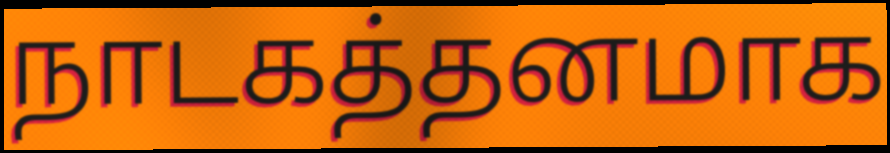
நாடகத்தனமாக